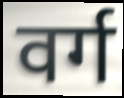
वर्ग